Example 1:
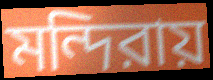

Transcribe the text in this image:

মন্দিরায়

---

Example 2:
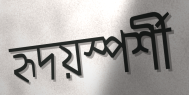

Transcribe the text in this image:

হৃদয়স্পর্শী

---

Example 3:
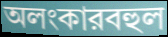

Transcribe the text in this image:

অলংকারবহুল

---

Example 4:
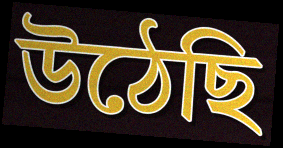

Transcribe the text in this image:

উঠেছি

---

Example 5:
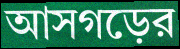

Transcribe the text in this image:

আসগড়ের